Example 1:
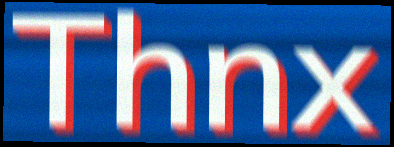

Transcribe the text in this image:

Thnx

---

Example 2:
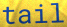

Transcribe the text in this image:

tail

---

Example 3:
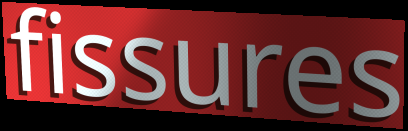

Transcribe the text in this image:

fissures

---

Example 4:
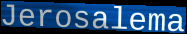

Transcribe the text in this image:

Jerosalema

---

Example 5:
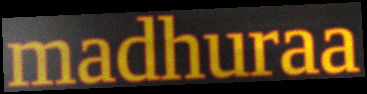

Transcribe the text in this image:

madhuraa